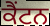
ਕੈਂਟਨ